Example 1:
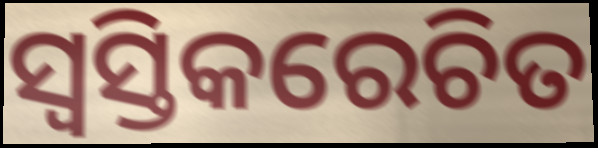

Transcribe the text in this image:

ସ୍ୱସ୍ତିକରେଚିତ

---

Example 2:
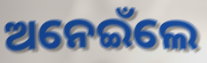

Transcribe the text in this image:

ଅନେଇଁଲେ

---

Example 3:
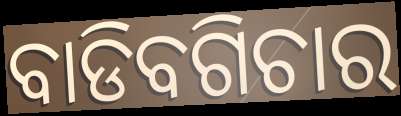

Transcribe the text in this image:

ବାଡିବଗିଚାର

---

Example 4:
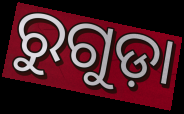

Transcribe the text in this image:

ରୁଗୁଡ଼ା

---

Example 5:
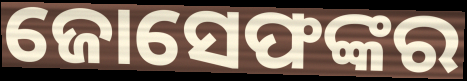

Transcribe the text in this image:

ଜୋସେଫଙ୍କର